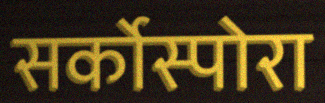
सर्कोस्पोरा